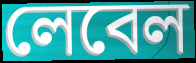
লেবেল